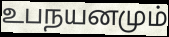
உபநயனமும்